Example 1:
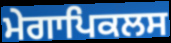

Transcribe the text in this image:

ਮੇਗਾਪਿਕਲਸ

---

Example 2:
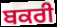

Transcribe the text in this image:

ਬਕਰੀ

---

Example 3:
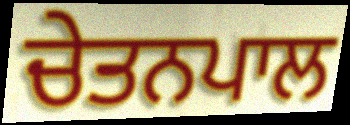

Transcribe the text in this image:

ਚੇਤਨਪਾਲ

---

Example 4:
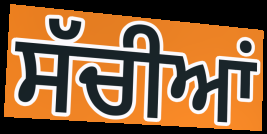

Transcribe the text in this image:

ਸੱਚੀਆਂ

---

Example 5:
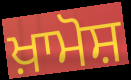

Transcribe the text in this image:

ਖ਼ਾਮੋਸ਼